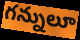
గన్నులూ